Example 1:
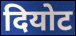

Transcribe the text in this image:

दियोट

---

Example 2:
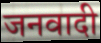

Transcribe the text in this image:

जनवादी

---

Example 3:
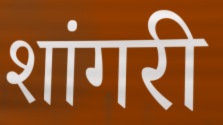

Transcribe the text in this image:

शांगरी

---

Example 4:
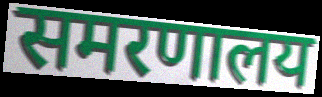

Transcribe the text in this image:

समरणालय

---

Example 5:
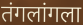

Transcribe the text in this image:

तंगलांगला